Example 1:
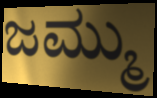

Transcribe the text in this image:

ಜಮ್ಮು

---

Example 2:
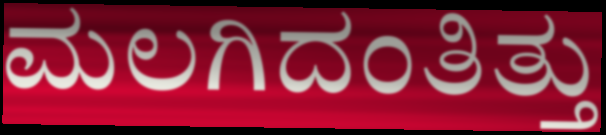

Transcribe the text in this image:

ಮಲಗಿದಂತಿತ್ತು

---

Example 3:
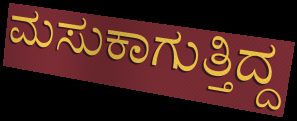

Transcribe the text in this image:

ಮಸುಕಾಗುತ್ತಿದ್ದ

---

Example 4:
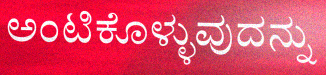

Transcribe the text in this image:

ಅಂಟಿಕೊಳ್ಳುವುದನ್ನು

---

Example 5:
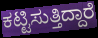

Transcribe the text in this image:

ಕಟ್ಟಿಸುತ್ತಿದ್ದಾರೆ